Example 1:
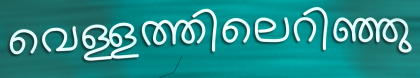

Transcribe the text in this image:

വെള്ളത്തിലെറിഞ്ഞു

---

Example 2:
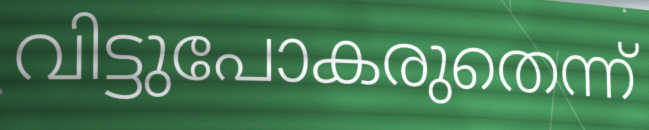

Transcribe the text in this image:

വിട്ടുപോകരുതെന്ന്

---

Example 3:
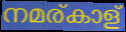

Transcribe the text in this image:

നമര്കാള്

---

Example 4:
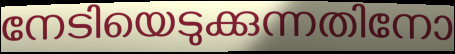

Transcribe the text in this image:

നേടിയെടുക്കുന്നതിനോ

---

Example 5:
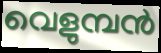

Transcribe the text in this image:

വെളുമ്പൻ